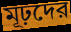
মূঢ়দের